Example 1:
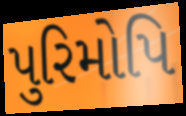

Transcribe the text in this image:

પુરિમોપિ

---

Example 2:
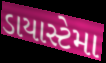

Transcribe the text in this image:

ડાયાસ્ટેમા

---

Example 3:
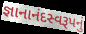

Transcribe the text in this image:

જ્ઞાનાનંદસ્વરૂપનું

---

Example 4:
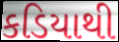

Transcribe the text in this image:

કડિયાથી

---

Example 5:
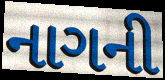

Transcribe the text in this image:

નાગની